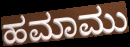
ಹಮಾಮು